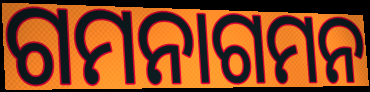
ଗମନାଗମନ